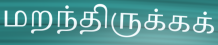
மறந்திருக்கக்